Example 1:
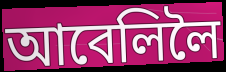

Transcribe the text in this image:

আবেলিলৈ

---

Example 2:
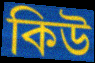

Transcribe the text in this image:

কিউ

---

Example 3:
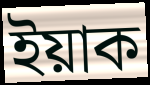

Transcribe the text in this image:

ইয়াক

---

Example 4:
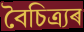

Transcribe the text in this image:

বৈচিত্ৰ্যৰ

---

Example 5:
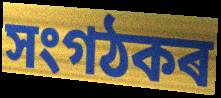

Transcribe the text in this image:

সংগঠকৰ